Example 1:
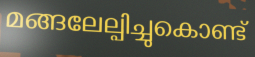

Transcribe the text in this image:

മങ്ങലേല്പിച്ചുകൊണ്ട്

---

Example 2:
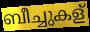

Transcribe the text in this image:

ബീച്ചുകള്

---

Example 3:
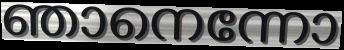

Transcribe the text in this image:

ഞാനെന്നോ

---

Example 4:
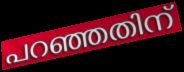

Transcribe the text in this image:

പറഞ്ഞതിന്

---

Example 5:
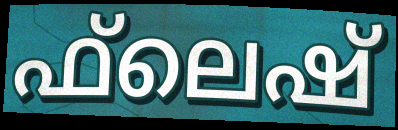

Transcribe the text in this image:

ഫ്‌ലെഷ്